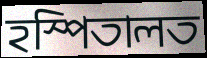
হস্পিতালত